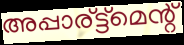
അപ്പാര്ട്ട്മെന്റ്